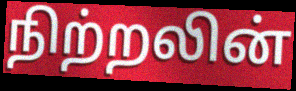
நிற்றலின்